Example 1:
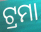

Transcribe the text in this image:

ଟ୍ରମା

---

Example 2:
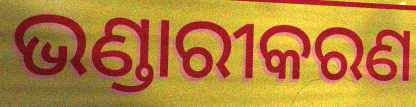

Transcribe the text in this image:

ଭଣ୍ଡାରୀକରଣ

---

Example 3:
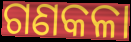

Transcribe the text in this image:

ଗଣକଳା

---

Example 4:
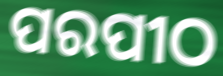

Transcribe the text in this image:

ପରପୀଠ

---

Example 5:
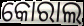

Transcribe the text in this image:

କୋରାଲ